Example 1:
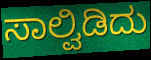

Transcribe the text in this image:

ಸಾಲ್ವಿಡಿದು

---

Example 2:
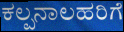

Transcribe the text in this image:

ಕಲ್ಪನಾಲಹರಿಗೆ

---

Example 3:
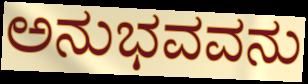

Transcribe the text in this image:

ಅನುಭವವನು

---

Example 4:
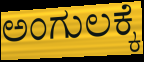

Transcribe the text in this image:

ಅಂಗುಲಕ್ಕೆ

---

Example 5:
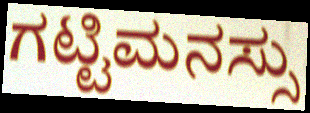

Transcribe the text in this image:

ಗಟ್ಟಿಮನಸ್ಸು